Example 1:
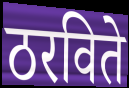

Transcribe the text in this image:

ठरविते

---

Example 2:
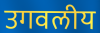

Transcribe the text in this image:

उगवलीय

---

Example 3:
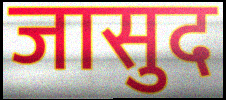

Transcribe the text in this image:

जासुद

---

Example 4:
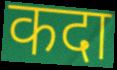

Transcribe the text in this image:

कदा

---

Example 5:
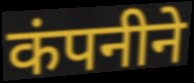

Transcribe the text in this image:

कंपनीने